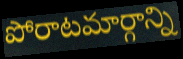
పోరాటమార్గాన్ని